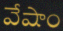
వేషాం